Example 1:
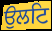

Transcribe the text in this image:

ਉਲਟਿ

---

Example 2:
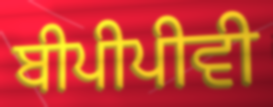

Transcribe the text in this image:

ਬੀਪੀਪੀਵੀ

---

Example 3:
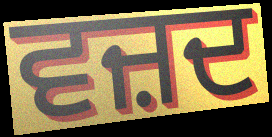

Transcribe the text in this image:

ਵਜ਼ਦ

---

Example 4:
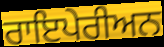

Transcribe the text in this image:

ਰਾਇਪੇਰੀਅਨ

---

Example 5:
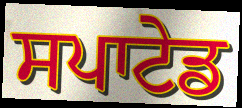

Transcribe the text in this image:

ਸਪਾਟੇਡ